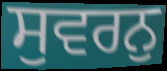
ਸੁਵਰਨੁ